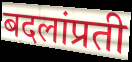
बदलांप्रती